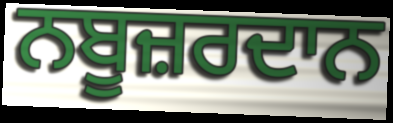
ਨਬੂਜ਼ਰਦਾਨ